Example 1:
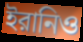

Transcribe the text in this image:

ইরানিও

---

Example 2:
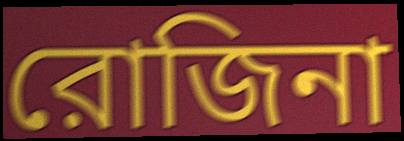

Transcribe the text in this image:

রোজিনা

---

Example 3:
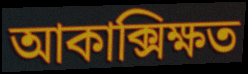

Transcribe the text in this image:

আকাক্সিক্ষত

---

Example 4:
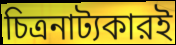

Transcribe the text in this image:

চিত্রনাট্যকারই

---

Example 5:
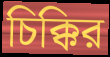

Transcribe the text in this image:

চিক্কির